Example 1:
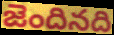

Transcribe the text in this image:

జెందినది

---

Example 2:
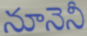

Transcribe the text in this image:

నూనెనీ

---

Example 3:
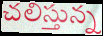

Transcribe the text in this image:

చలిస్తున్న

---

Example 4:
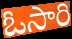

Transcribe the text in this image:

ఓసారి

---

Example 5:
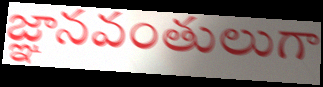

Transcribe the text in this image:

జ్ఞానవంతులుగా